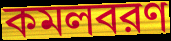
কমলবরণ